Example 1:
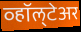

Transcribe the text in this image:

व्हॉल्टेअर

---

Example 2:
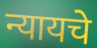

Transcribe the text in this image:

न्यायचे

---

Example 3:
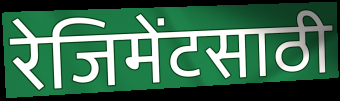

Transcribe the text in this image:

रेजिमेंटसाठी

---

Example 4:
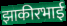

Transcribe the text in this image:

झाकीरभाई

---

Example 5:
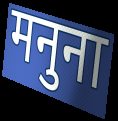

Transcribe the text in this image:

मनुना